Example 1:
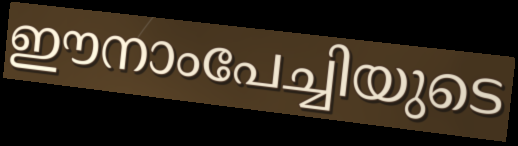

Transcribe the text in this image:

ഈനാംപേച്ചിയുടെ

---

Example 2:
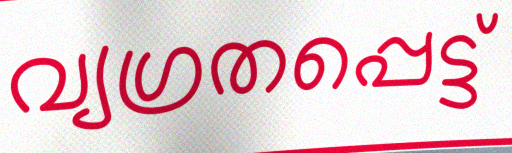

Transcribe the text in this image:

വ്യഗ്രതപ്പെട്ട്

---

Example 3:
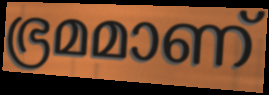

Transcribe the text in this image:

ഭ്രമമാണ്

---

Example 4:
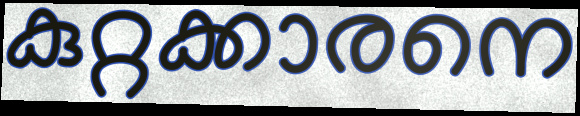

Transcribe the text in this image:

കുറ്റക്കാരനെ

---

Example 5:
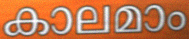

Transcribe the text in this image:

കാലമാം